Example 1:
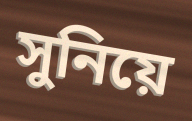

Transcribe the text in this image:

সুনিয়ে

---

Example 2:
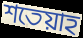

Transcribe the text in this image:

শতেয়াহ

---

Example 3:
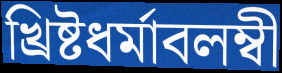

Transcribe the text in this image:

খ্রিষ্টধর্মাবলম্বী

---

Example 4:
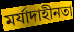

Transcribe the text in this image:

মর্যাদাহীনতা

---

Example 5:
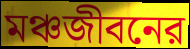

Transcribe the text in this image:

মঞ্চজীবনের